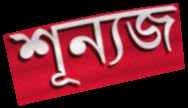
শূন্যজ